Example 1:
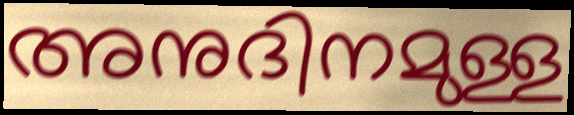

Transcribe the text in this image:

അനുദിനമുള്ള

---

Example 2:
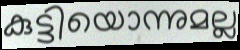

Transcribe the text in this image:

കുട്ടിയൊന്നുമല്ല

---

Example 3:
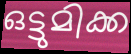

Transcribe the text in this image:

ഒട്ടുമിക്ക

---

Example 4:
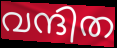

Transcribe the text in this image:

വന്ദിത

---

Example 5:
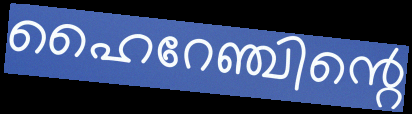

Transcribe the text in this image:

ഹൈറേഞ്ചിന്റെ